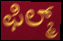
ಫಿಲ್ಮ್